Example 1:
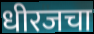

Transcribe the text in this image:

धीरजचा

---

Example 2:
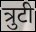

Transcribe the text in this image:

त्रुटी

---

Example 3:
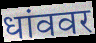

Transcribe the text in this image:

धांववर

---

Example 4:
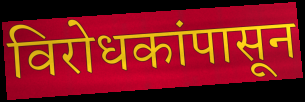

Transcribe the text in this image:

विरोधकांपासून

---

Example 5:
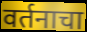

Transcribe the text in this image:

वर्तनाचा